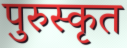
पुरुस्कृत